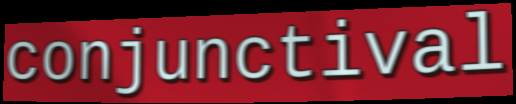
conjunctival